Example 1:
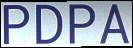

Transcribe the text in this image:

PDPA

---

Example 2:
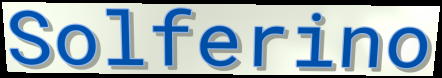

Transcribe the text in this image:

Solferino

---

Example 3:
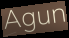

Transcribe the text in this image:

Agun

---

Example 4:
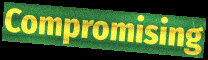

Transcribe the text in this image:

Compromising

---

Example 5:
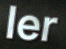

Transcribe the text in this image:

ler